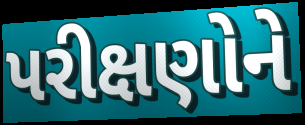
પરીક્ષણોને